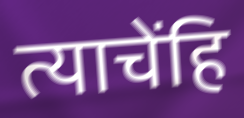
त्याचेंहि